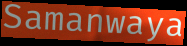
Samanwaya